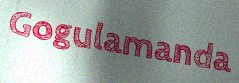
Gogulamanda